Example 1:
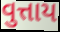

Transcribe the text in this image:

વુત્તાય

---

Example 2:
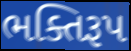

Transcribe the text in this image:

ભક્તિરૂપ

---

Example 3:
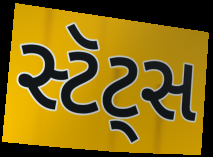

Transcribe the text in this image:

સ્ટૅટ્સ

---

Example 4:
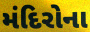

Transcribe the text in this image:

મંદિરોના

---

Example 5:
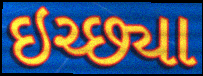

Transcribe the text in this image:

ઇચ્છ્યા